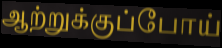
ஆற்றுக்குப்போய்